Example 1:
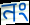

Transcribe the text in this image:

নং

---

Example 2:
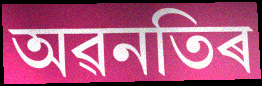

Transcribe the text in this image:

অৱনতিৰ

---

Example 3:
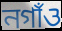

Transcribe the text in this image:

নগাঁও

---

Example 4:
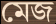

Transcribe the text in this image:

মেজ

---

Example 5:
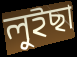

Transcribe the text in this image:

লুইছা